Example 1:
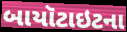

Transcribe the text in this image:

બાયૉટાઇટના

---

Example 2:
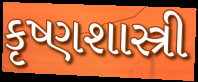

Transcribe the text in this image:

કૃષ્ણશાસ્ત્રી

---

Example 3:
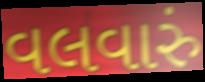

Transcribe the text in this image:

વલવારું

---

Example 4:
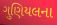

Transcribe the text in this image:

ગુણિયલના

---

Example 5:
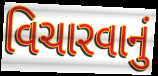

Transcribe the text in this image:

વિચારવાનું